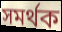
সমৰ্থক